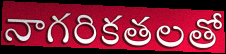
నాగరికతలతో